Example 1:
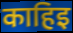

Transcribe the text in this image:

काहिइ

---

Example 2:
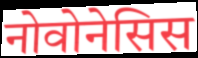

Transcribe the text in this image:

नोवोनेसिस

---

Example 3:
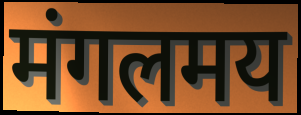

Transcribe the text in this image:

मंगलमय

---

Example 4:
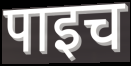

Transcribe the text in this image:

पाइच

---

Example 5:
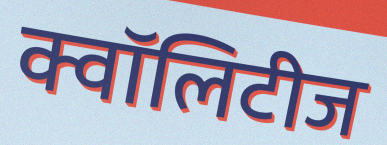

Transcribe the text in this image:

क्वॉलिटीज